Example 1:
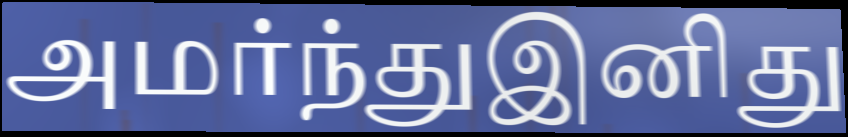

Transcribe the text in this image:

அமர்ந்துஇனிது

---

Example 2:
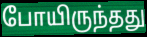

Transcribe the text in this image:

போயிருந்தது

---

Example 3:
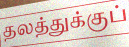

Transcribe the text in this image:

தலத்துக்குப்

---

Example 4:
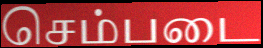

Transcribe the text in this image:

செம்படை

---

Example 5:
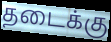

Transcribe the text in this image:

தடைக்கு